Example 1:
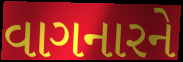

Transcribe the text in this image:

વાગનારને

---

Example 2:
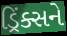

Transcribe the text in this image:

ડ્રિંક્સને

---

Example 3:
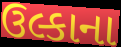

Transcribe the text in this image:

ઉલ્કાના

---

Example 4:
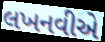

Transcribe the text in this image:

લખનવીએ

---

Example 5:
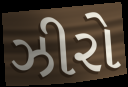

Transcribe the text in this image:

ઝીરો